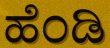
ಹೆಂಡಿ